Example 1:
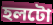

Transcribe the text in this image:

হলটো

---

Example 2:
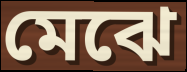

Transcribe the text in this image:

মেঝে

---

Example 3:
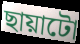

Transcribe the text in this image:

ছায়াটো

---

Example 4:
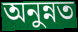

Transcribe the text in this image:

অনুন্নত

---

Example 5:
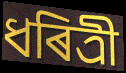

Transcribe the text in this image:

ধৰিত্ৰী